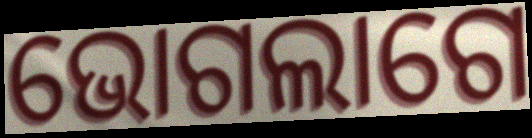
ଭୋଗଲାଗେ